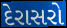
દેરાસરો